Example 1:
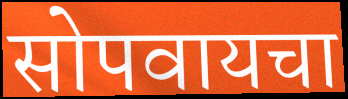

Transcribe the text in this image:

सोपवायचा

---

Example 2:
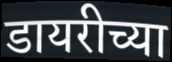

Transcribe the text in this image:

डायरीच्या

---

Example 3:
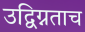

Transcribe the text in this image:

उद्विग्नताच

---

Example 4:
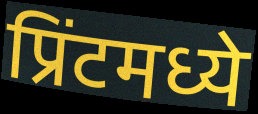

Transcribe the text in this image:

प्रिंटमध्ये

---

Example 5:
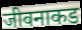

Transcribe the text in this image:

जीवनाकड